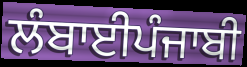
ਲੰਬਾਈਪੰਜਾਬੀ